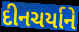
દીનચર્યાને